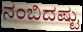
ನಂಬಿದಷ್ಟು